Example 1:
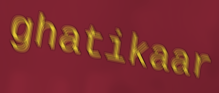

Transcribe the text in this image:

ghatikaar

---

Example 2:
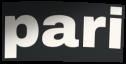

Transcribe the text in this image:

pari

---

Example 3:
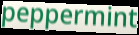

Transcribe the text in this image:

peppermint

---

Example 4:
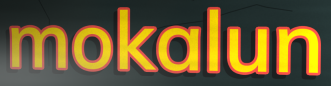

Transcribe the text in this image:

mokalun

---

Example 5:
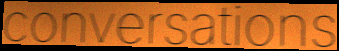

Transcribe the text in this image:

conversations